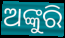
ଅଙ୍କୁରି